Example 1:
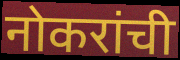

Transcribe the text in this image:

नोकरांची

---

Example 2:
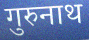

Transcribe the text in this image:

गुरुनाथ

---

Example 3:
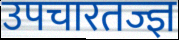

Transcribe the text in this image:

उपचारतज्ज्ञ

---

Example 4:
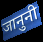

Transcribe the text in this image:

जानुनी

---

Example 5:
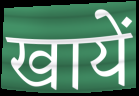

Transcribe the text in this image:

खायें